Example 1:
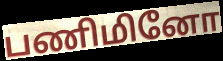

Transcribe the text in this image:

பணிமினோ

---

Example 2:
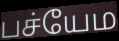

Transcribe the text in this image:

பச்யேம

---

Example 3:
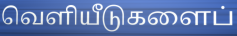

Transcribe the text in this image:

வெளியீடுகளைப்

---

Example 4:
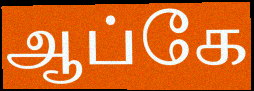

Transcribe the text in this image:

ஆப்கே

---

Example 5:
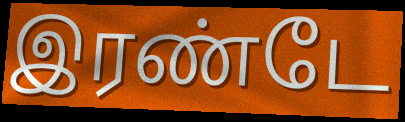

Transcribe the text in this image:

இரண்டே